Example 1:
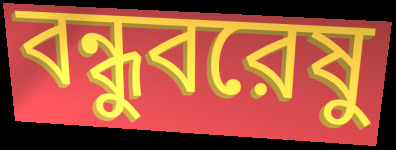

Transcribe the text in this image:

বন্ধুবরেষু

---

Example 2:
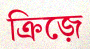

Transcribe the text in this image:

ক্রিজ়ে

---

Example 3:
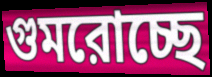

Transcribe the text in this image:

গুমরোচ্ছে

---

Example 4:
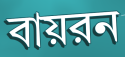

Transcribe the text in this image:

বায়রন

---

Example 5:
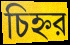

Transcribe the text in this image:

চিহ্নর